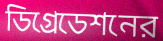
ডিগ্রেডেশনের